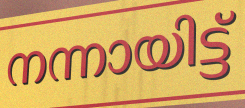
നന്നായിട്ട്